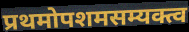
प्रथमोपशमसम्यक्त्व